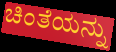
ಚಿಂತೆಯನ್ನು